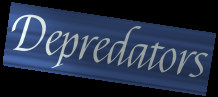
Depredators